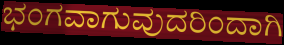
ಭಂಗವಾಗುವುದರಿಂದಾಗಿ